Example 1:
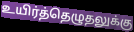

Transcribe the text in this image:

உயிர்த்தெழுதலுக்கு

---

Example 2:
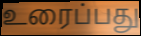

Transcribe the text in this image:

உரைப்பது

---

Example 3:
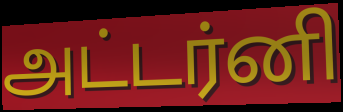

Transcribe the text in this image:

அட்டர்னி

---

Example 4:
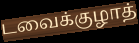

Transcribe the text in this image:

டவைக்குழாத்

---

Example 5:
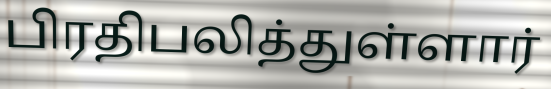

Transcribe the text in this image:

பிரதிபலித்துள்ளார்